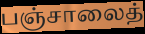
பஞ்சாலைத்